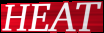
HEAT